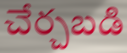
చేర్చబడి